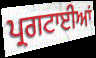
ਪ੍ਰਗਟਾਈਆਂ